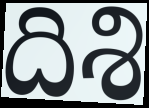
దిశి